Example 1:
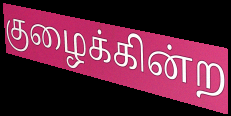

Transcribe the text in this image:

குழைக்கின்ற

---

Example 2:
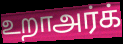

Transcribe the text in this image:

உறாஅர்க்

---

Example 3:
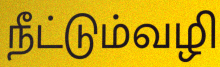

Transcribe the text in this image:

நீட்டும்வழி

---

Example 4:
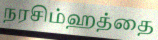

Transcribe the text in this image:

நரசிம்ஹத்தை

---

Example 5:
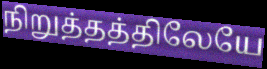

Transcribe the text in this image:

நிறுத்தத்திலேயே